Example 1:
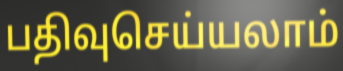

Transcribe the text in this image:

பதிவுசெய்யலாம்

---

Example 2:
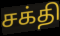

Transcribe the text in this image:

சக்தி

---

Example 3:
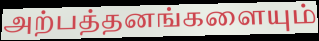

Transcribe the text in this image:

அற்பத்தனங்களையும்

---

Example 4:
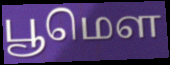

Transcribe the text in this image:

பூமௌ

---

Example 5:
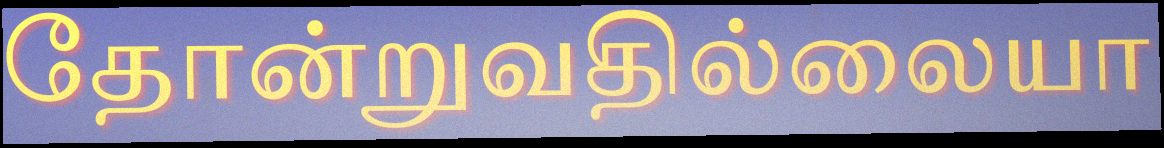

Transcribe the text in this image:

தோன்றுவதில்லையா